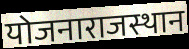
योजनाराजस्थान